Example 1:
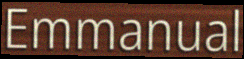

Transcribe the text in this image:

Emmanual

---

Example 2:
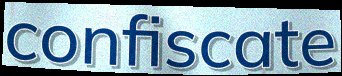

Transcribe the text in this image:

confiscate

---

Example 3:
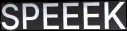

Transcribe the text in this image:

SPEEEK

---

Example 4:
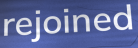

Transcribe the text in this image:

rejoined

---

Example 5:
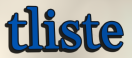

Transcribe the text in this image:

tliste